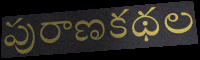
పురాణకథల